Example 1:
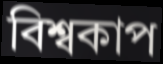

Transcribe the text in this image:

বিশ্বকাপ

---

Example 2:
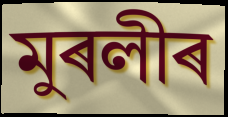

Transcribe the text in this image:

মুৰলীৰ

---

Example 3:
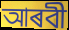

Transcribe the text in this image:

আৰবী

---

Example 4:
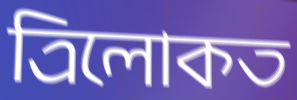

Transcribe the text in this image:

ত্ৰিলোকত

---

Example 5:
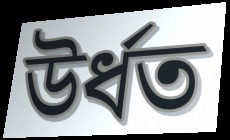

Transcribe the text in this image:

উৰ্ধত